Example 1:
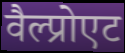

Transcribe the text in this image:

वैल्प्रोएट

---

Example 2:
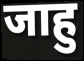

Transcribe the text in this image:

जाहु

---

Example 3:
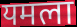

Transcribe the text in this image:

यमला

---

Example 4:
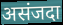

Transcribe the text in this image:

असंजदा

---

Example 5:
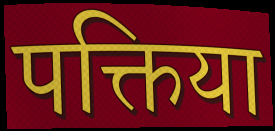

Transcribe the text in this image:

पक्तिया